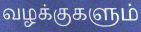
வழக்குகளும்